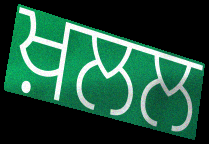
ਖ਼ਲਲ